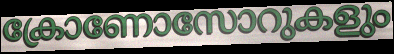
ക്രോണോസോറുകളും